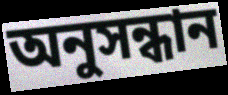
অনুসন্ধান